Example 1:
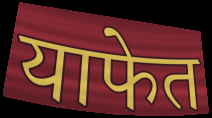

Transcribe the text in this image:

याफेत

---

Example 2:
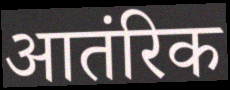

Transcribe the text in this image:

आतंरिक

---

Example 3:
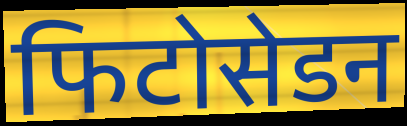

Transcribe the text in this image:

फिटोसेडन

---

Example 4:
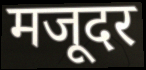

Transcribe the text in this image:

मजूदर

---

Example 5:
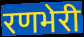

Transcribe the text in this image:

रणभेरी